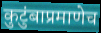
कुटुंबाप्रमाणेच